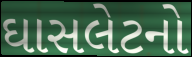
ઘાસલેટનો